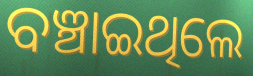
ବଞ୍ଚାଇଥିଲେ